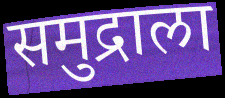
समुद्राला